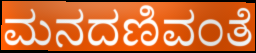
ಮನದಣಿವಂತೆ